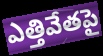
ఎత్తివేతపై